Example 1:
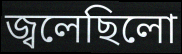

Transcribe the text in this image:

জ্বলেছিলো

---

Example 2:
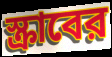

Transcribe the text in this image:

স্ক্রাবের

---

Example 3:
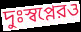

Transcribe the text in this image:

দুঃস্বপ্নেরও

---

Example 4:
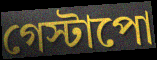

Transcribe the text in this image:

গেস্টাপো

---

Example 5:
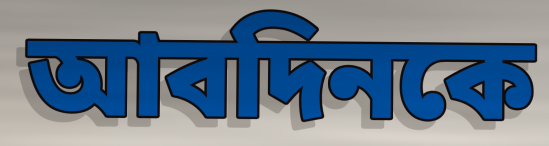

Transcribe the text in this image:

আবদিনকে